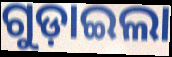
ଗୁଡ଼ାଇଲା